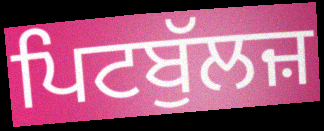
ਪਿਟਬੁੱਲਜ਼